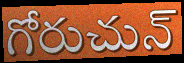
గోరుచున్